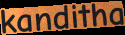
kanditha